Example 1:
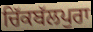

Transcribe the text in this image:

ਚਿੱਕਬੱਲਪੁਰਾ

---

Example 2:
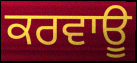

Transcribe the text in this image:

ਕਰਵਾਊ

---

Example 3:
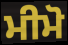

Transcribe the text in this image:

ਮੀਮੋ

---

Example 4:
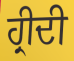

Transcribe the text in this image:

ਹ੍ਰੀਦੀ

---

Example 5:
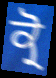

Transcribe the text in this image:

ਕ੍ਰੋ